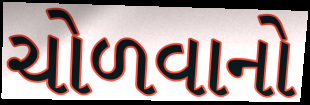
ચોળવાનો